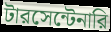
টারসেন্টেনারি